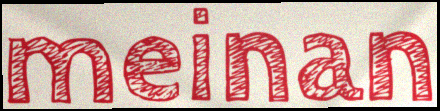
meinan